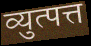
व्युत्पत्त